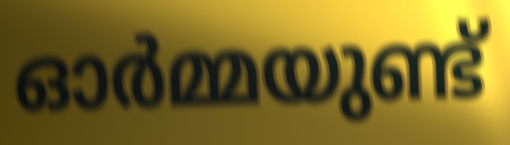
ഓർമ്മയുണ്ട്